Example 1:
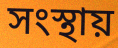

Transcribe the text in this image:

সংস্থায়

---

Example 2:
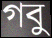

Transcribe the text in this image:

গবু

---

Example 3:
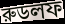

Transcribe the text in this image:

রুডলফ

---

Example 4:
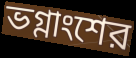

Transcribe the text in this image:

ভগ্নাংশের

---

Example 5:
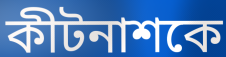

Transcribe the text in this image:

কীটনাশকে